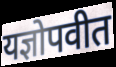
यज्ञोपवीत